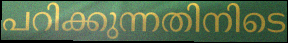
പറിക്കുന്നതിനിടെ